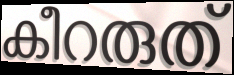
കീറരുത്